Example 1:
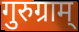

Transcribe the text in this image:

गुरुग्राम्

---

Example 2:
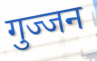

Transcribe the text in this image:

गुज्जन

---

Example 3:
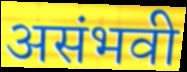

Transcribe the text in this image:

असंभवी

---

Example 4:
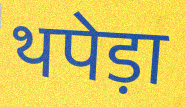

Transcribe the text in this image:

थपेड़ा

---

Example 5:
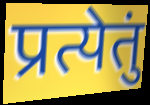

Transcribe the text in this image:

प्रत्येतुं